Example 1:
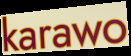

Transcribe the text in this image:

karawo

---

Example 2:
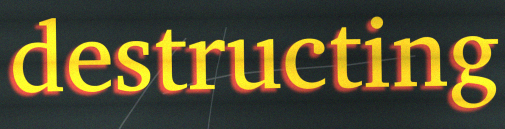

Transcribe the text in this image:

destructing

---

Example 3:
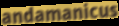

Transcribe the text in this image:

andamanicus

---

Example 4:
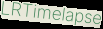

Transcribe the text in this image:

LRTimelapse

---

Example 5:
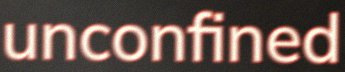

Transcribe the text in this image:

unconfined